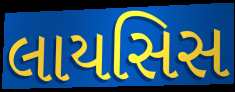
લાયસિસ